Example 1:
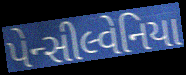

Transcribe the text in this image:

પેન્સીલ્વેનિયા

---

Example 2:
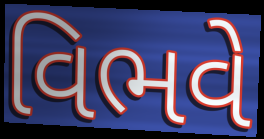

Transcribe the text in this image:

વિભવે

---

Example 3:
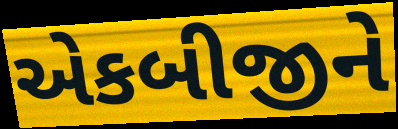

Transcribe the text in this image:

એકબીજીને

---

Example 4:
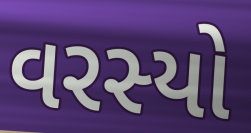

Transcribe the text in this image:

વરસ્યો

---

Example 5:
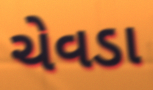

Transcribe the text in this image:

ચેવડા